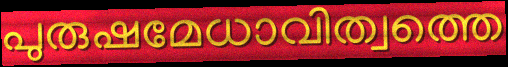
പുരുഷമേധാവിത്വത്തെ